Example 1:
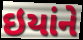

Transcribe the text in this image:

ઇયાંને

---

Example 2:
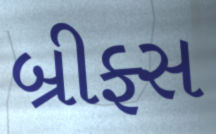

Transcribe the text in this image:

બ્રીફ્સ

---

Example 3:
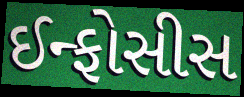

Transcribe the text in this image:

ઈન્ફોસીસ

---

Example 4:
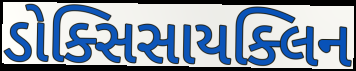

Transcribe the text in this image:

ડોક્સિસાયક્લિન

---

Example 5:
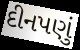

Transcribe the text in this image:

દીનપણું